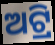
ଅଟ୍ରି